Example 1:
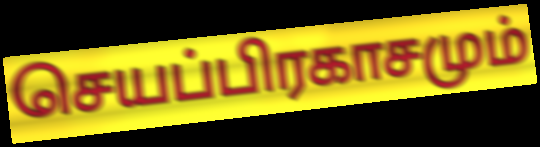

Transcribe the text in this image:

செயப்பிரகாசமும்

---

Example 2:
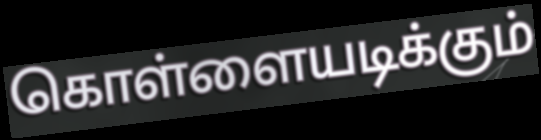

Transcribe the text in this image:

கொள்ளையடிக்கும்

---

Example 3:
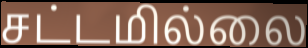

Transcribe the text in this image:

சட்டமில்லை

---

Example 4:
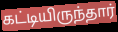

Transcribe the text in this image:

கட்டியிருந்தார்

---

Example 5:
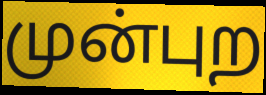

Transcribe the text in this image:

முன்புற